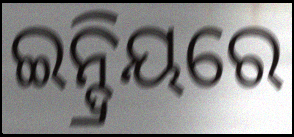
ଇନ୍ଦ୍ରିୟରେ